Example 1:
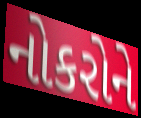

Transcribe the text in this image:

નોકરોને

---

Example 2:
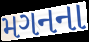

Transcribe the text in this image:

મગનના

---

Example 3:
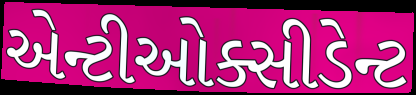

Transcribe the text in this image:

એન્ટીઓક્સીડેન્ટ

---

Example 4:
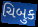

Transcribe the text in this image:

ચિબુક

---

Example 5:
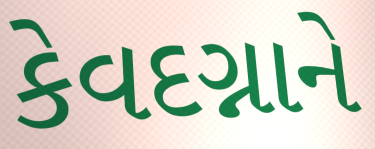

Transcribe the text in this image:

કેવદગ્નાને